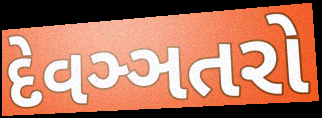
દેવઞ્ઞતરો